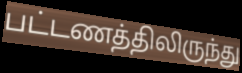
பட்டணத்திலிருந்து